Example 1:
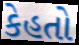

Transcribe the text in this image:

કેહતો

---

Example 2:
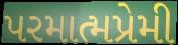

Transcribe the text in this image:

પરમાત્મપ્રેમી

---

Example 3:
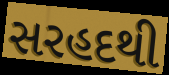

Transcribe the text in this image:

સરહદથી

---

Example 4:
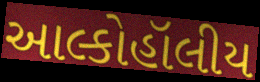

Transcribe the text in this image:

આલ્કોહૉલીય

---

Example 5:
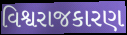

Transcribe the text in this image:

વિશ્વરાજકારણ